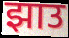
झाउ